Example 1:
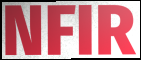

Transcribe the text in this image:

NFIR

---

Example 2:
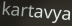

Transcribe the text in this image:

kartavya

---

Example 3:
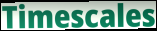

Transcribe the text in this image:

Timescales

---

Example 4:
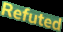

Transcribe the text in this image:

Refuted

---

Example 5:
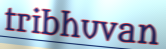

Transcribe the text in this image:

tribhuvan